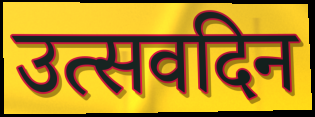
उत्सवदिन